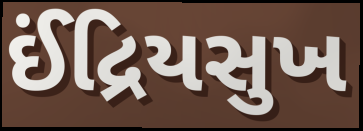
ઈંદ્રિયસુખ